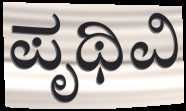
ಪೃಥಿವಿ